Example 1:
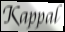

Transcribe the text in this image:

Kappal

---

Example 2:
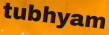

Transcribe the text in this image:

tubhyam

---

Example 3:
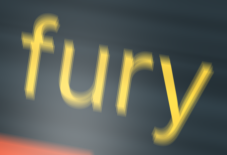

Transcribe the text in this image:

fury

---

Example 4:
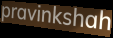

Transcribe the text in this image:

pravinkshah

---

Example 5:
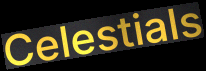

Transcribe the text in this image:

Celestials